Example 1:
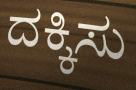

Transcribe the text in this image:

ದಕ್ಕಿಸು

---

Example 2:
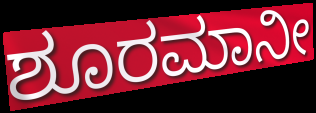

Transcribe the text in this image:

ಶೂರಮಾನೀ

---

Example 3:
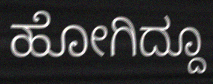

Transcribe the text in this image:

ಹೋಗಿದ್ದೂ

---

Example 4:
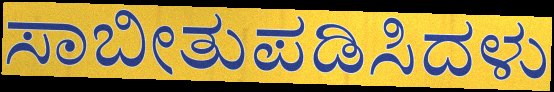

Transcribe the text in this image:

ಸಾಬೀತುಪಡಿಸಿದಳು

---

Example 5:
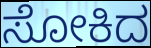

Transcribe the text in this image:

ಸೋಕಿದ